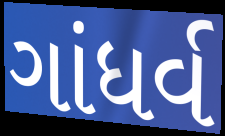
ગાંધર્વ